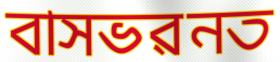
বাসভৱনত